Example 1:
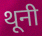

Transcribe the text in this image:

थूनी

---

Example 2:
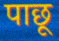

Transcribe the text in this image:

पाछू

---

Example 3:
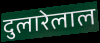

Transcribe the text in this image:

दुलारेलाल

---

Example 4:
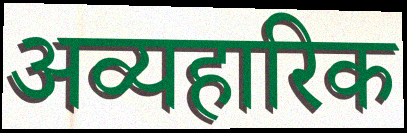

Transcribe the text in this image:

अव्यहारिक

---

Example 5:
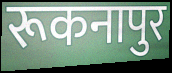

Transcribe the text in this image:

रूकनापुर